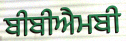
ਬੀਬੀਐਮਬੀ